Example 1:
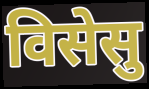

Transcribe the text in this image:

विसेसु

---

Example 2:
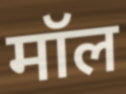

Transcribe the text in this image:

मॉल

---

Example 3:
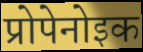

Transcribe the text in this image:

प्रोपेनोइक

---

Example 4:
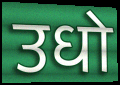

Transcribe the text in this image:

उधो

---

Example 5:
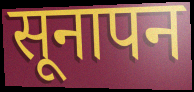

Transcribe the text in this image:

सूनापन